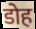
डोह